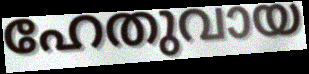
ഹേതുവായ